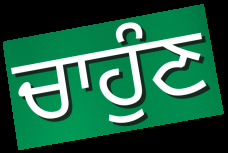
ਚਾਹੁੰਣ